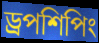
ড্রপশিপিং